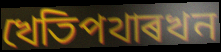
খেতিপথাৰখন